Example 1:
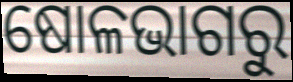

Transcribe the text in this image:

ଷୋଳଭାଗରୁ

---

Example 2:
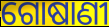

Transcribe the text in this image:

ଗୋଷାଣୀ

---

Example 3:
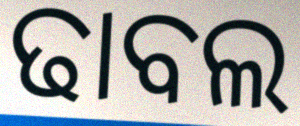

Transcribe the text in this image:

ଢାବଲ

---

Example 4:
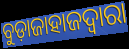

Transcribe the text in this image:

ବୁଡ଼ାଜାହାଜଦ୍ୱାରା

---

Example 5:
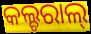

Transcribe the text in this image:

କଲ୍ଚରାଲ୍